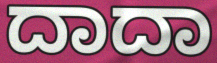
ದಾದಾ